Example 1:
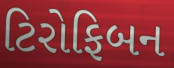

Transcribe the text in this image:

ટિરોફિબન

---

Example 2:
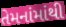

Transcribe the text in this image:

તેમનાંમાંથી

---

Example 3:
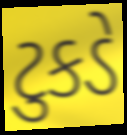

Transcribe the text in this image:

ટુકડે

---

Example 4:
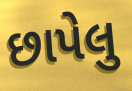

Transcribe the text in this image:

છાપેલુ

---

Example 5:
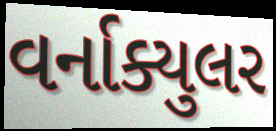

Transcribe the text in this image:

વર્નાક્યુલર